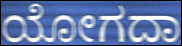
ಯೋಗದಾ